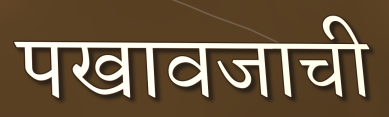
पखावजाची